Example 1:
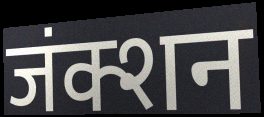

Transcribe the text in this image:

जंक्शन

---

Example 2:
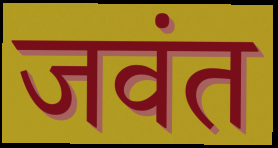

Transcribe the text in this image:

जवंत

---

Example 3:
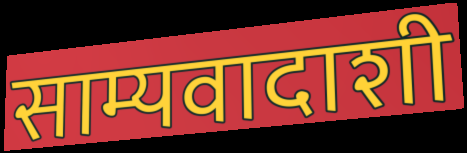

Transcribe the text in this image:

साम्यवादाशी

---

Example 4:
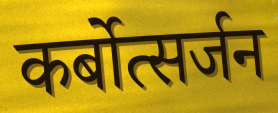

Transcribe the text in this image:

कर्बोत्सर्जन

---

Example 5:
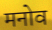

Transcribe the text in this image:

मनोव